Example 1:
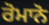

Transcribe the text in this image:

ਰੋਮਾਨੋ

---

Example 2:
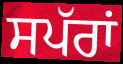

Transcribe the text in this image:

ਸਪੱਰਾਂ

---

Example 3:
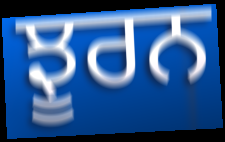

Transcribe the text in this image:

ਝੂਰਨ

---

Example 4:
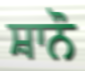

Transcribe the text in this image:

ਸ਼ਾਨੌ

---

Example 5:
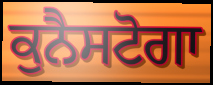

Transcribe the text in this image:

ਕੁਨੈਸਟੋਗਾ